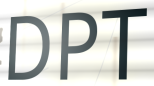
DPT